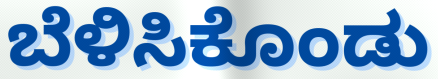
ಬೆಳಿಸಿಕೊಂಡು